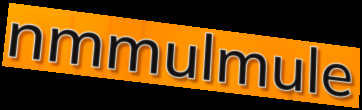
nmmulmule